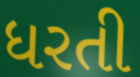
ધરતી